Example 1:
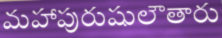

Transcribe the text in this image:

మహాపురుషులౌతారు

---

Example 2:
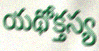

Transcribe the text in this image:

యథోక్తస్య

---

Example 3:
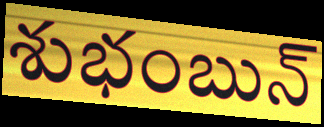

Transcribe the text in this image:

శుభంబున్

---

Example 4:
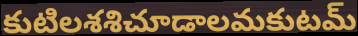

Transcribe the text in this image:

కుటిలశశిచూడాలమకుటమ్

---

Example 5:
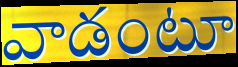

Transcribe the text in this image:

వాడంటూ